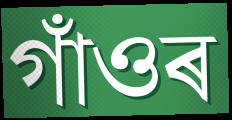
গাঁওৰ